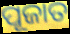
ପୂଜାତ